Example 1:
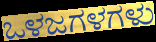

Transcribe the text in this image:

ಒಳಜಗಳಗಳು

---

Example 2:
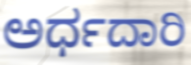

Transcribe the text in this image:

ಅರ್ಧದಾರಿ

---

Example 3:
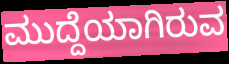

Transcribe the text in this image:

ಮುದ್ದೆಯಾಗಿರುವ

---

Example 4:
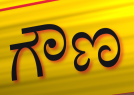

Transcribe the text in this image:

ಗೌಣ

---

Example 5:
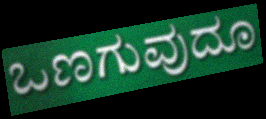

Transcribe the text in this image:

ಒಣಗುವುದೂ